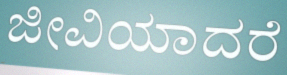
ಜೀವಿಯಾದರೆ